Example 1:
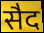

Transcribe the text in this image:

सैद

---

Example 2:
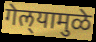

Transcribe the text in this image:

गेल्यामुळे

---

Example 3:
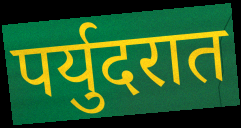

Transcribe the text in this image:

पर्युदरात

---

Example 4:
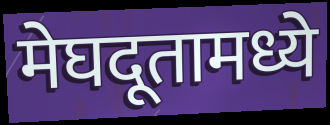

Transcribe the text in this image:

मेघदूतामध्ये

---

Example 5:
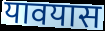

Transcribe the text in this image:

यावयास